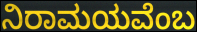
ನಿರಾಮಯವೆಂಬ